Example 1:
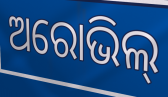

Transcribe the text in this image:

ଅରୋଭିଲ୍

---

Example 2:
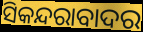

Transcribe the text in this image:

ସିକନ୍ଦରାବାଦର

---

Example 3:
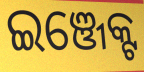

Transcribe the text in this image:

ଇଞ୍ଜେକ୍ଟ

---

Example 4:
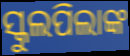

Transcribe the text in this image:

ସ୍କୁଲପିଲାଙ୍କ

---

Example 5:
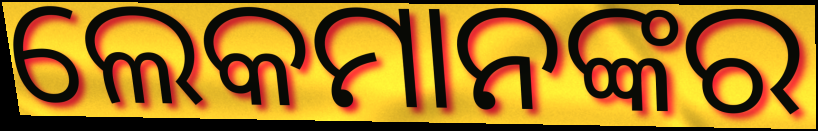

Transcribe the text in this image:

ଲେକମାନଙ୍କର